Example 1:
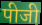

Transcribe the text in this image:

पीजी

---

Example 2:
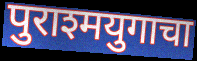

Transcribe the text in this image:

पुराश्मयुगाचा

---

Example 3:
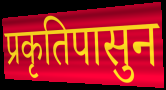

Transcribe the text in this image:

प्रकृतिपासुन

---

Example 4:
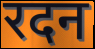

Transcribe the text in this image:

रदन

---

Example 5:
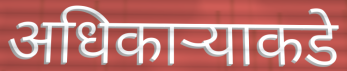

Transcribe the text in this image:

अधिकार्‍याकडे